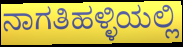
ನಾಗತಿಹಳ್ಳಿಯಲ್ಲಿ